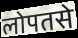
लोपतसे